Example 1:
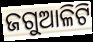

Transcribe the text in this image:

ଜଗୁଆଳିଟି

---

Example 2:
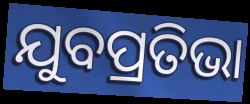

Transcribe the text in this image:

ଯୁବପ୍ରତିଭା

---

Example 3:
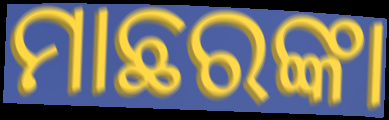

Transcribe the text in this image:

ମାଛରଙ୍କା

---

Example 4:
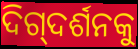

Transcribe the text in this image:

ଦିଗ୍‌ଦର୍ଶନକୁ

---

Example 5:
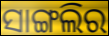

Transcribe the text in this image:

ସାଙ୍ଗଲିର